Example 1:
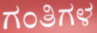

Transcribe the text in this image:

ಗಂತಿಗಳ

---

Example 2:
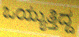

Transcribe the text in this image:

ಒಯ್ಯುತ್ತಿದ್ದ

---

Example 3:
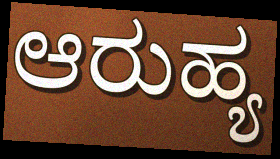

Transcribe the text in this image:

ಆರುಹ್ಯ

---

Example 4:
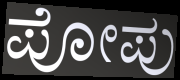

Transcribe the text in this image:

ಪೋಪು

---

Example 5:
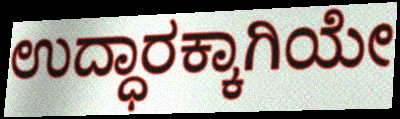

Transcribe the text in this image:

ಉದ್ಧಾರಕ್ಕಾಗಿಯೇ